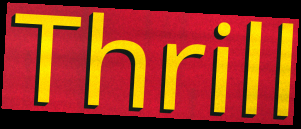
Thrill